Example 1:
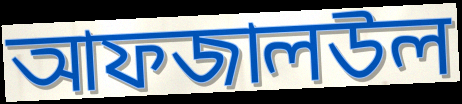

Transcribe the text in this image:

আফজালউল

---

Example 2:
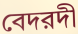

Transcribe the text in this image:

বেদরদী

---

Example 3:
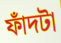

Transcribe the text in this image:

ফাঁদটা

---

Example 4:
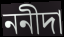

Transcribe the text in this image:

ননীদা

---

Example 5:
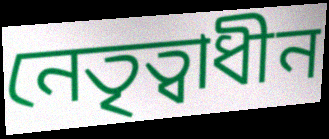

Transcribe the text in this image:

নেতৃত্বাধীন